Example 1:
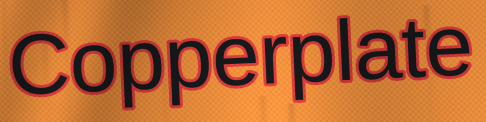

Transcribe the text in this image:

Copperplate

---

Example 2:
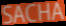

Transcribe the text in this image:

SACHA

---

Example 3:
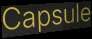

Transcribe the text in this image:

Capsule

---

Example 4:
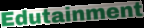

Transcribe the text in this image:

Edutainment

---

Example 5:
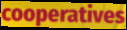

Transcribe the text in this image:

cooperatives